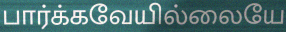
பார்க்கவேயில்லையே